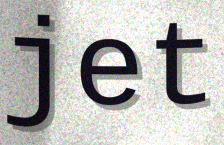
jet